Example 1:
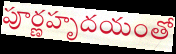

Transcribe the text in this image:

పూర్ణహృదయంతో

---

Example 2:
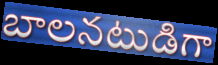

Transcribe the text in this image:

బాలనటుడిగా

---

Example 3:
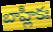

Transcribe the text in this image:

బాహ్లీకః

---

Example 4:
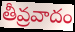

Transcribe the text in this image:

తీవ్రవాదం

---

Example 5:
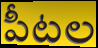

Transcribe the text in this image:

పీటల